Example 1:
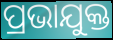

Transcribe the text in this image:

ପ୍ରଭାଯୁକ୍ତ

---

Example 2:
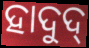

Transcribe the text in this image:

ହାଦୁଦ୍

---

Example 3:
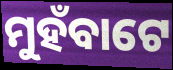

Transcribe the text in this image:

ମୁହଁବାଟେ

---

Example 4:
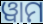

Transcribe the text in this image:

ୱାମ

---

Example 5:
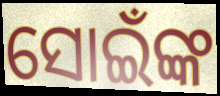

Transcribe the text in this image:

ସୋଇଁଙ୍କ